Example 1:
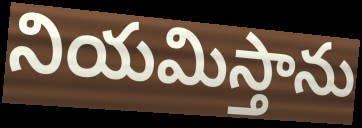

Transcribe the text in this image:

నియమిస్తాను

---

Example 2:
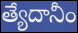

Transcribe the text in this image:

త్యేదానీం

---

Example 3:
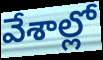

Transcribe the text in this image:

వేశాల్లో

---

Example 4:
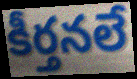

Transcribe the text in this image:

కీర్తనలే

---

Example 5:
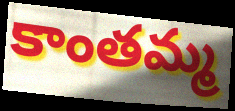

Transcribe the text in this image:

కాంతమ్మ